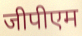
जीपीएम